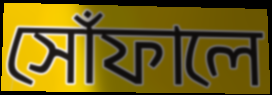
সোঁফালে